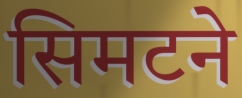
सिमटने